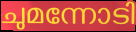
ചുമന്നോടി